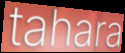
tahara